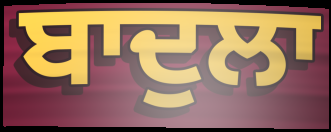
ਬਾਦੁਲਾ